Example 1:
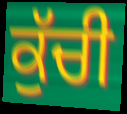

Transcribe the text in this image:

ਕੁੱਚੀ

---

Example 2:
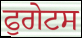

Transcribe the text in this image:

ਫੁਗੇਟਸ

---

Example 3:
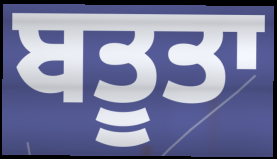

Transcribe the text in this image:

ਬਤੂਤਾ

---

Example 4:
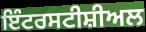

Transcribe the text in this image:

ਇੰਟਰਸਟੀਸ਼ੀਅਲ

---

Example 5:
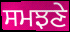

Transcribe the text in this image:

ਸਮਝਣੇ